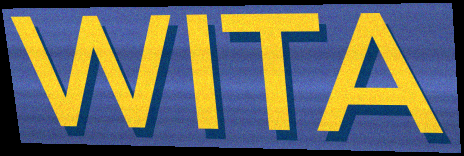
WITA